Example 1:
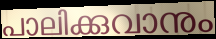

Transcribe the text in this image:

പാലിക്കുവാനും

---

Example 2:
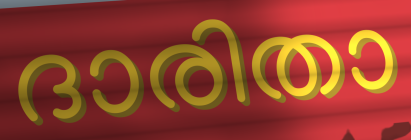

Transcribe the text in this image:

ദാരിതാ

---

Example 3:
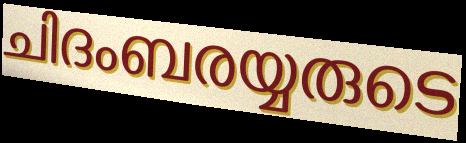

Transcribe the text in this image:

ചിദംബരയ്യരുടെ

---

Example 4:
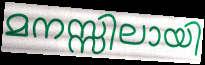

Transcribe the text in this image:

മനസ്സിലായി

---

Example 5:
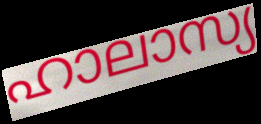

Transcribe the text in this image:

ഹാലാസ്യ